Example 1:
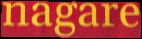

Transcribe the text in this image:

nagare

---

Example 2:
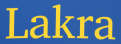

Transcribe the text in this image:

Lakra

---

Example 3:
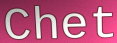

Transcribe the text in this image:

Chet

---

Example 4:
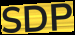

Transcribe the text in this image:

SDP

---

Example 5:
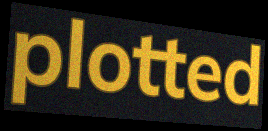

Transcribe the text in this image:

plotted